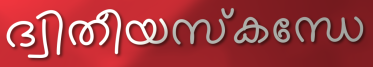
ദ്വിതീയസ്കന്ധേ